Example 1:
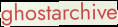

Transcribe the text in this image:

ghostarchive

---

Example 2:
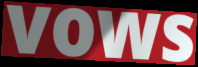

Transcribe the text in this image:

vows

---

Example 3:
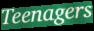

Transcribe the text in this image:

Teenagers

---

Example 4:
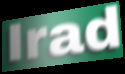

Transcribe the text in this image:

Irad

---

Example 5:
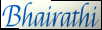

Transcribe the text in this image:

Bhairathi